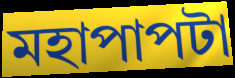
মহাপাপটা